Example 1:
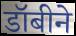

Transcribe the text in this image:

डॉबीने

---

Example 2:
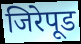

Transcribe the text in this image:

जिरेपूड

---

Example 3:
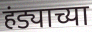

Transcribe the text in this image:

हंड्याच्या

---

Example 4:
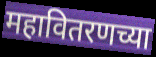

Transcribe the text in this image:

महावितरणच्या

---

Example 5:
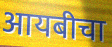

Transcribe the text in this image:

आयबीचा